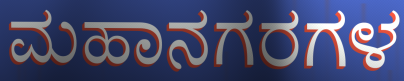
ಮಹಾನಗರಗಳ